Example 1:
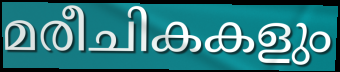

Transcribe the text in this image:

മരീചികകളും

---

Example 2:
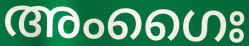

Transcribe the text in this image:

അംഗൈഃ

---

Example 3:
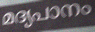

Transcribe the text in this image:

മദ്യപാനം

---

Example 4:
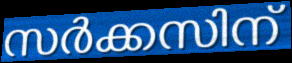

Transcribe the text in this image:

സർക്കസിന്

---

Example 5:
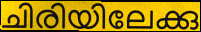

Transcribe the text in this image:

ചിരിയിലേക്കു